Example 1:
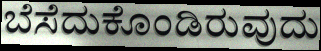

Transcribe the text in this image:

ಬೆಸೆದುಕೊಂಡಿರುವುದು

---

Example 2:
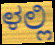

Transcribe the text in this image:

ಳಲ್ಲಿ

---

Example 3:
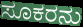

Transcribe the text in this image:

ಸೂಕರನು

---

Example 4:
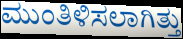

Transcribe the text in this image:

ಮುಂತಿಳಿಸಲಾಗಿತ್ತು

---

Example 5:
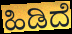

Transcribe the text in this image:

ಹಿಡಿದೆ